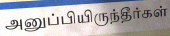
அனுப்பியிருந்தீர்கள்